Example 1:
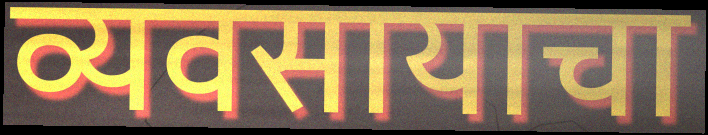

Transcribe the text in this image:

व्यवसायाचा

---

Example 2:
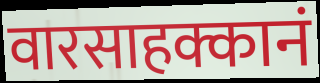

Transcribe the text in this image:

वारसाहक्कानं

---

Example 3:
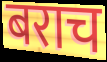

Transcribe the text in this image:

बराच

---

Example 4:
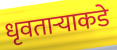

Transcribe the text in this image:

धृवतार्‍याकडे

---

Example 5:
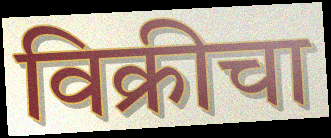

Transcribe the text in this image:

विक्रीचा